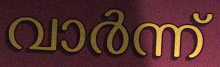
വാർന്ന്